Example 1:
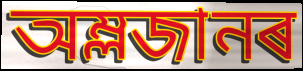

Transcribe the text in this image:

অম্লজানৰ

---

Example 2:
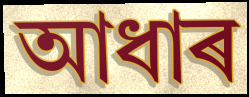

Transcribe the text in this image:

আধাৰ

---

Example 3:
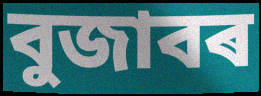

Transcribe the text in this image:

বুজাবৰ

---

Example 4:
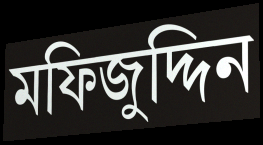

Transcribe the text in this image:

মফিজুদ্দিন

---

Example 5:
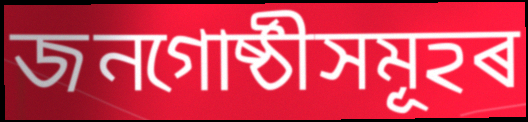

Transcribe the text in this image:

জনগোষ্ঠীসমূহৰ